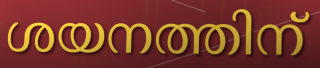
ശയനത്തിന്